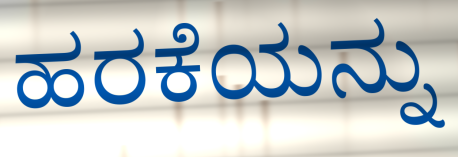
ಹರಕೆಯನ್ನು